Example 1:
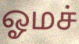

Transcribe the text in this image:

ஓமச்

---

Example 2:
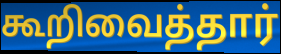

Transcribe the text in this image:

கூறிவைத்தார்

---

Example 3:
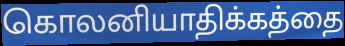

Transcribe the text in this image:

கொலனியாதிக்கத்தை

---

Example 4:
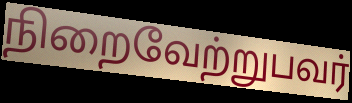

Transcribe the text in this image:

நிறைவேற்றுபவர்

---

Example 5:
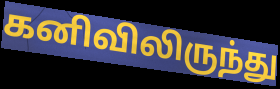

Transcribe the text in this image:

கனிவிலிருந்து